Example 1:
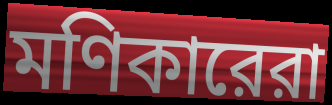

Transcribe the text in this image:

মণিকারেরা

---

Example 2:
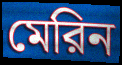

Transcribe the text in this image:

মেরিন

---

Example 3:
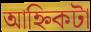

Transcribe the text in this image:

আহ্নিকটা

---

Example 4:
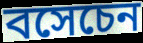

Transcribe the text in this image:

বসেচেন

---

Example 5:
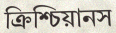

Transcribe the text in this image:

ক্রিশ্চিয়ানস